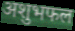
अशुभफल